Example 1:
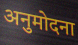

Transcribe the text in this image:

अनुमोदना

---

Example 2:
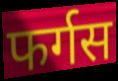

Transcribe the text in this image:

फर्गस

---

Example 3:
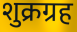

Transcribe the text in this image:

शुक्रग्रह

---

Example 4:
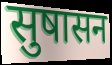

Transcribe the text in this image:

सुषासन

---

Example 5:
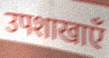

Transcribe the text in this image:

उपशाखाएँ